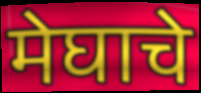
मेघाचे